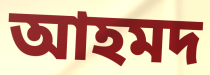
আহমদ